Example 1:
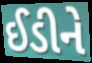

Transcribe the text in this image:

ઈડીને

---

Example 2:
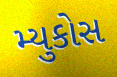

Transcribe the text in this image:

મ્યુકોસ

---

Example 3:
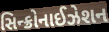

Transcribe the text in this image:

સિન્ક્રોનાઈઝેશન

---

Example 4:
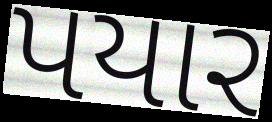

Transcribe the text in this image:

પયાર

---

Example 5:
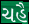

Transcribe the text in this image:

ચહૈ